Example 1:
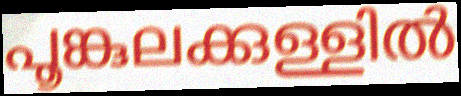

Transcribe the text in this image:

പൂങ്കുലക്കുള്ളിൽ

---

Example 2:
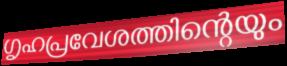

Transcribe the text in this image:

ഗൃഹപ്രവേശത്തിന്റെയും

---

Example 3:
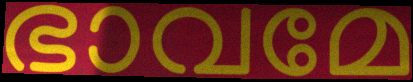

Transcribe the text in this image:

ഭാവമേ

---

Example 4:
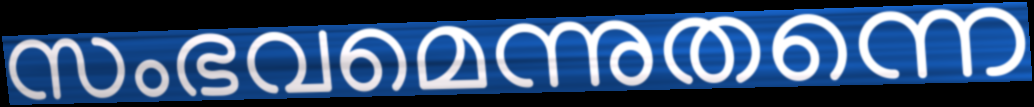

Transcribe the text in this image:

സംഭവമെന്നുതന്നെ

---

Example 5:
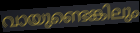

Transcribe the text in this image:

വായുണ്ടെങ്കിലും